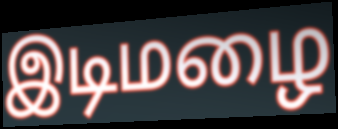
இடிமழை